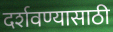
दर्शवण्यासाठी